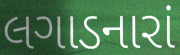
લગાડનારાં